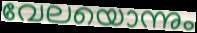
വേലയൊന്നും